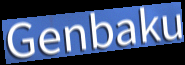
Genbaku